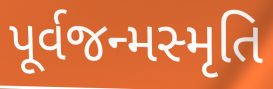
પૂર્વજન્મસ્મૃતિ